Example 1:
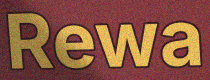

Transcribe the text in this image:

Rewa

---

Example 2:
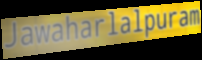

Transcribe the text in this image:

Jawaharlalpuram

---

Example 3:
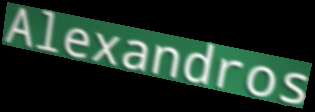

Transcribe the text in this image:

Alexandros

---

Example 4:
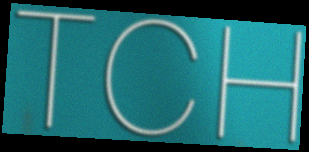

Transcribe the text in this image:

TCH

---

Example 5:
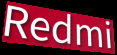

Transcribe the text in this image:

Redmi